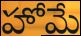
హోమే